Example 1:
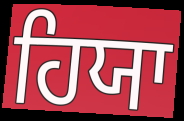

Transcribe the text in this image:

ਹਿਯਾ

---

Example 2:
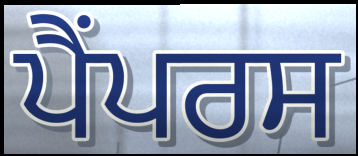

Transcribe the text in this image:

ਪੈਂਪਰਸ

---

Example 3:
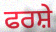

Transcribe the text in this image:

ਫਰਸ਼ੇ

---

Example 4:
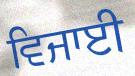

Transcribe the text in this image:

ਵਿਜਾਈ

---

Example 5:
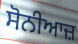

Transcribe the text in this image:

ਸੋਨੀਆਜ਼